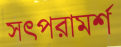
সৎপরামর্শ